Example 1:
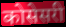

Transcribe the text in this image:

कोसेसरी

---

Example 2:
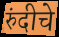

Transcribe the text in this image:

रुंदीचे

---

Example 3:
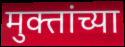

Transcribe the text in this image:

मुक्तांच्या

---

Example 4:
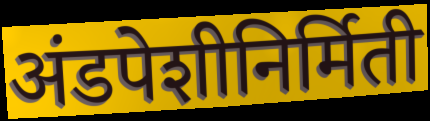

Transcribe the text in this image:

अंडपेशीनिर्मिती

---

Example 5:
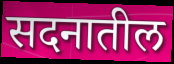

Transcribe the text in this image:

सदनातील